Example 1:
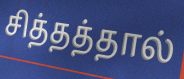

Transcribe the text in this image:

சித்தத்தால்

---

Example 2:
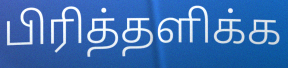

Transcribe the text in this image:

பிரித்தளிக்க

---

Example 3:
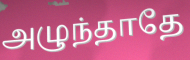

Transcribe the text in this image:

அழுந்தாதே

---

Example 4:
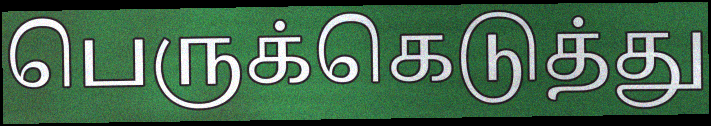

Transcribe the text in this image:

பெருக்கெடுத்து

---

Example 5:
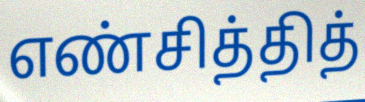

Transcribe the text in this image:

எண்சித்தித்